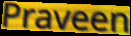
Praveen